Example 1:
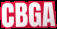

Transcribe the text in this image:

CBGA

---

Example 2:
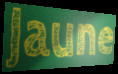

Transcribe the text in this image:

Jaune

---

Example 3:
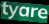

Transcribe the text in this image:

tyare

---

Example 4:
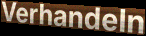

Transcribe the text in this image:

Verhandeln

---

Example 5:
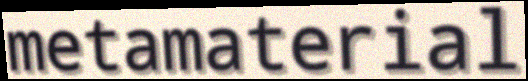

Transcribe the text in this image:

metamaterial